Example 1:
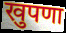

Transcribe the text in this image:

खुपणा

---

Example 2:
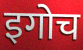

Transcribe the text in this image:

इगोच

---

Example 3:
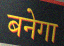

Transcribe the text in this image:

बनेगा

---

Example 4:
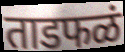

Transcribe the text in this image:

ताडफळं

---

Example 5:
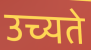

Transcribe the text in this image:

उच्यते